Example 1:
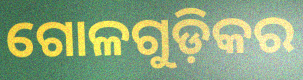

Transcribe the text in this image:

ଗୋଳଗୁଡ଼ିକର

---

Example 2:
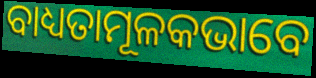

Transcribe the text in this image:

ବାଧ୍ୟତାମୂଳକଭାବେ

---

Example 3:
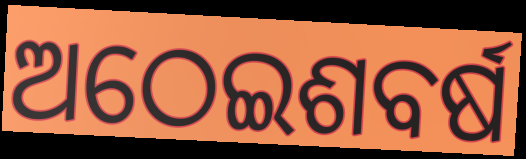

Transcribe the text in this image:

ଅଠେଇଶବର୍ଷ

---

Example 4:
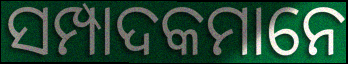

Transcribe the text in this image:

ସମ୍ପାଦକମାନେ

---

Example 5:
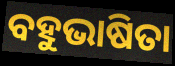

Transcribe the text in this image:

ବହୁଭାଷିତା